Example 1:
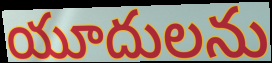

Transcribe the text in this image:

యూదులను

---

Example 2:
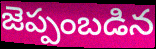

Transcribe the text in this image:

జెప్పంబడిన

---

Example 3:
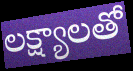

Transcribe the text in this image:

లక్ష్యాలతో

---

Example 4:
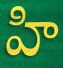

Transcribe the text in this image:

హి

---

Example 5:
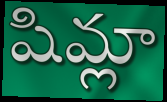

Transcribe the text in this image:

షిమ్లా